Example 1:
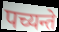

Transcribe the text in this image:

पच्यन्ते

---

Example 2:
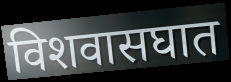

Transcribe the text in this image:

विशवासघात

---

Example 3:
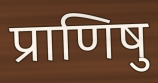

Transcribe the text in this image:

प्राणिषु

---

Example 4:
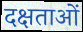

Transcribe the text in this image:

दक्षताओं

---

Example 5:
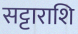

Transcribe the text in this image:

सट्टाराशि